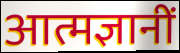
आत्मज्ञानीं